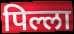
पिल्ला